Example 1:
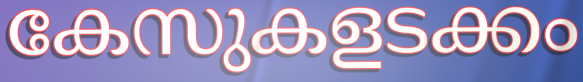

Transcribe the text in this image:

കേസുകളടക്കം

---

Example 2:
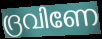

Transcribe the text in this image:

ദ്രവിണേ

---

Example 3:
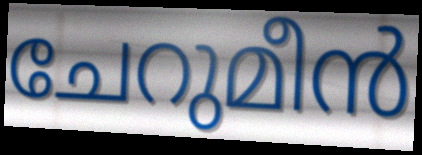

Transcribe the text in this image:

ചേറുമീൻ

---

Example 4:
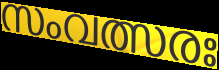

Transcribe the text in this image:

സംവത്സരഃ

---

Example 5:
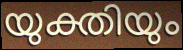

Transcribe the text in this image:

യുക്തിയും